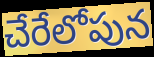
చేరేలోపున